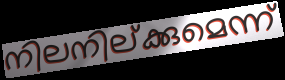
നിലനില്ക്കുമെന്ന്